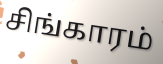
சிங்காரம்